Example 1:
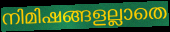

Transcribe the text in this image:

നിമിഷങ്ങളല്ലാതെ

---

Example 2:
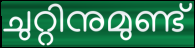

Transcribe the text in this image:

ചുറ്റിനുമുണ്ട്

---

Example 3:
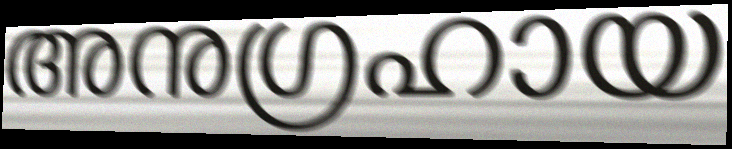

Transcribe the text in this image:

അനുഗ്രഹായ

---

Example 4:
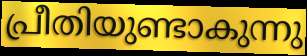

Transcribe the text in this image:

പ്രീതിയുണ്ടാകുന്നു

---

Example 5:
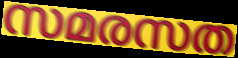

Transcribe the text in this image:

സമരസത